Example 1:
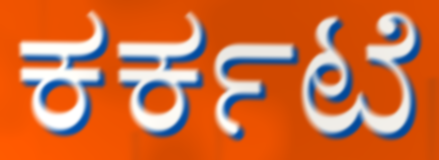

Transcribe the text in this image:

ಕರ್ಕಟೆ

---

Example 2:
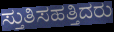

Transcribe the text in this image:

ಸ್ತುತಿಸಹತ್ತಿದರು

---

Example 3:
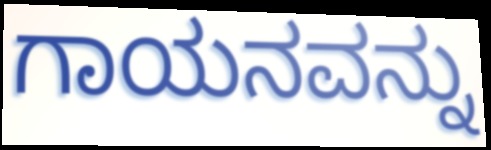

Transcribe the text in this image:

ಗಾಯನವನ್ನು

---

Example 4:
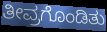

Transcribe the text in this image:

ತೀವ್ರಗೊಂಡಿತು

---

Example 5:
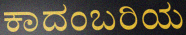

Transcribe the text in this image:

ಕಾದಂಬರಿಯ